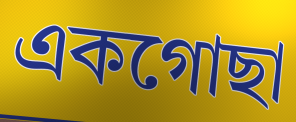
একগোছা